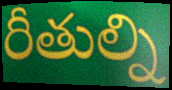
రీతుల్ని